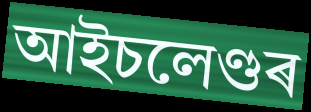
আইচলেণ্ডৰ